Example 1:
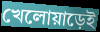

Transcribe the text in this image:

খেলোয়াড়েই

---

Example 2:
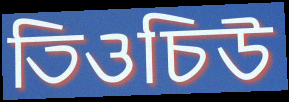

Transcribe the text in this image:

তিওচিউ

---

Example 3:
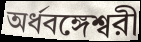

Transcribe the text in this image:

অর্ধবঙ্গেশ্বরী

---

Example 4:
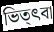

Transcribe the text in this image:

ভিত্ৎবা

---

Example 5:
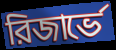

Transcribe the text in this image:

রিজার্ভে